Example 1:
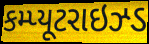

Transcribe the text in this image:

કમ્પ્યૂટરાઇઝ્ડ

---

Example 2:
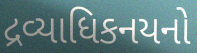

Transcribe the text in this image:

દ્રવ્યાધિકનયનો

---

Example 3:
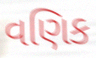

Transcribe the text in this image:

વણિક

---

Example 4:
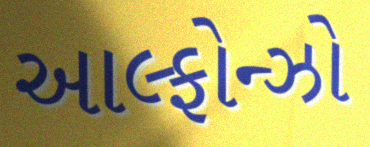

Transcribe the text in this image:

આલ્ફોન્ઝો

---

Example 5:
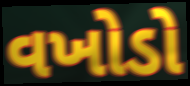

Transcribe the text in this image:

વખોડો